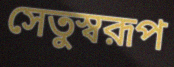
সেতুস্বরূপ